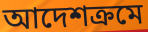
আদেশক্রমে